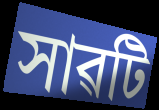
সাৱটি